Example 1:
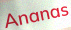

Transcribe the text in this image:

Ananas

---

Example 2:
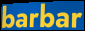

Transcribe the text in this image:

barbar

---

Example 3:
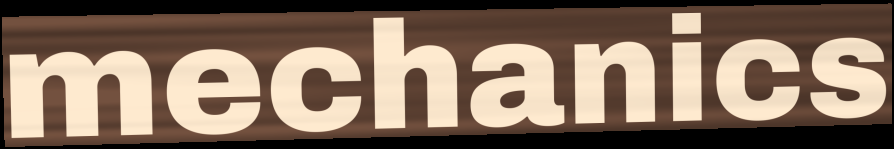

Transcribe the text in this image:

mechanics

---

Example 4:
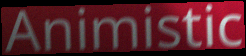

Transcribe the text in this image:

Animistic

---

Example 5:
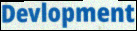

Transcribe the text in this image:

Devlopment